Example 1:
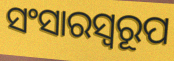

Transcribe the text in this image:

ସଂସାରସ୍ବରୂପ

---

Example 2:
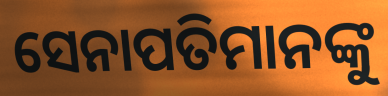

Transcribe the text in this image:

ସେନାପତିମାନଙ୍କୁ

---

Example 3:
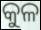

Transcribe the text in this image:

କୁଳ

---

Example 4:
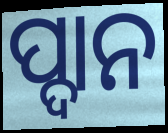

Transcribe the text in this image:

ପ୍ଦାନ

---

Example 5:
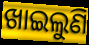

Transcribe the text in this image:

ଖାଇଲୁଣି